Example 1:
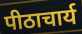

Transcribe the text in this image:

पीठाचार्य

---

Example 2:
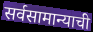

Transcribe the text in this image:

सर्वसामान्याची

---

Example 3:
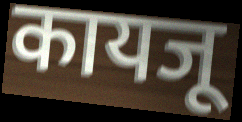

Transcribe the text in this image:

कायजू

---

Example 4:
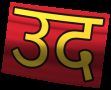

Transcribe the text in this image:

उद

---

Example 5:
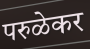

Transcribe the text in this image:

परुळेकर